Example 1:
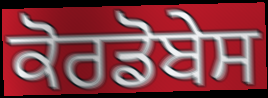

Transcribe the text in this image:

ਕੋਰਡੋਬੇਸ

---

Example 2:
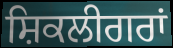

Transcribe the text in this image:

ਸ਼ਿਕਲੀਗਰਾਂ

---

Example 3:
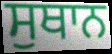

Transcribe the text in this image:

ਸੁਥਾਨ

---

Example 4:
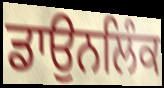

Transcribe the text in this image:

ਡਾਉਨਲਿੰਕ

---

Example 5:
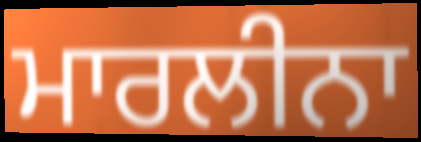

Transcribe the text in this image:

ਮਾਰਲੀਨਾ